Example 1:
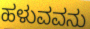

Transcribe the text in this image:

ಹಳುವವನು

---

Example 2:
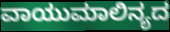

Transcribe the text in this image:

ವಾಯುಮಾಲಿನ್ಯದ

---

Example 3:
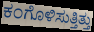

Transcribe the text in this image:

ಕಂಗೊಳಿಸುತ್ತಿತ್ತು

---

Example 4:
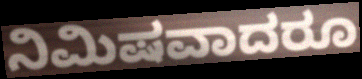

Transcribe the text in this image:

ನಿಮಿಷವಾದರೂ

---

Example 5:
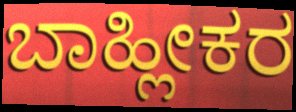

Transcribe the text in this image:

ಬಾಹ್ಲೀಕರ